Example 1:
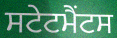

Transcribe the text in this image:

ਸਟੇਟਮੈਂਟਸ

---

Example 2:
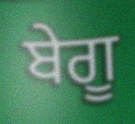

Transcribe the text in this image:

ਬੇਗੂ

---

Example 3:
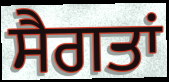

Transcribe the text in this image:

ਸੈਗਤਾਂ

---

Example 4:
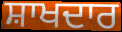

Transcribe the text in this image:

ਸ਼ਾਖਦਾਰ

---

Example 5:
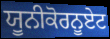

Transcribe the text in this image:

ਯੂਨੀਕੋਰਨੂਏਟ